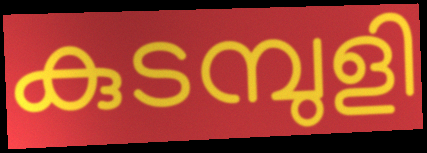
കുടമ്പുളി